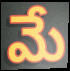
మే